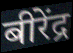
बीरेंद्र